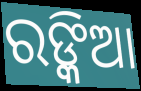
ରଙ୍କିଆ